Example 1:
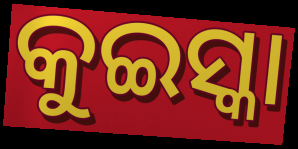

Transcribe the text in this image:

କୁଇସ୍କା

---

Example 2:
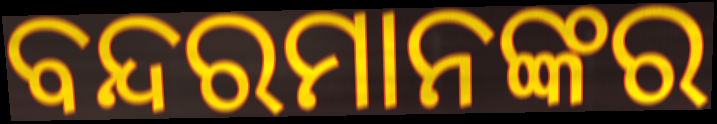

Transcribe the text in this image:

ବନ୍ଦରମାନଙ୍କର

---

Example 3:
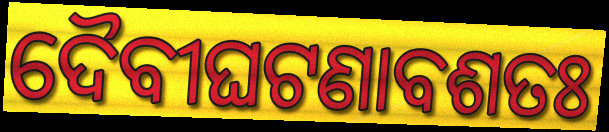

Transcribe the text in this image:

ଦୈବୀଘଟଣାବଶତଃ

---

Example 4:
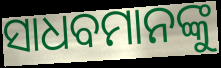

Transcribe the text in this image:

ସାଧବମାନଙ୍କୁ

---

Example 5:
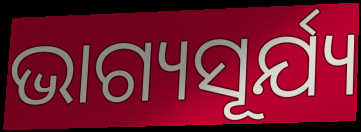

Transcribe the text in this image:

ଭାଗ୍ୟସୂର୍ଯ୍ୟ